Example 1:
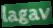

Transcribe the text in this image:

lagav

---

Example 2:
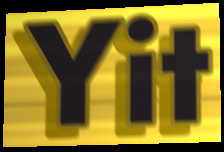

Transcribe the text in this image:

Yit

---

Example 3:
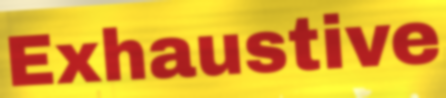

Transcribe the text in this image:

Exhaustive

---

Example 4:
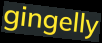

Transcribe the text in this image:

gingelly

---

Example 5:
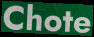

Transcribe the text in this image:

Chote